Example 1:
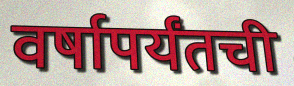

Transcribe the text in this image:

वर्षापर्यंतची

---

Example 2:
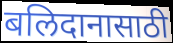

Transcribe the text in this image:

बलिदानासाठी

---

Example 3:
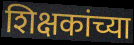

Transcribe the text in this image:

शिक्षकांच्‍या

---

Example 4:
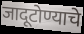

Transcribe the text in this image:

जादूटोण्याचे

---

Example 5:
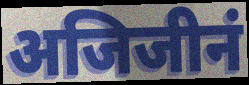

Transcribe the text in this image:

अजिजीनं